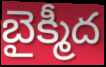
బైక్మీద